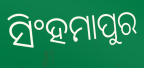
ସିଂହମାପୁର